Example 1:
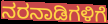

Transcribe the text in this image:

ನರನಾಡಿಗಳಿಗೆ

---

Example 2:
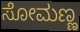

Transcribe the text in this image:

ಸೋಮಣ್ಣ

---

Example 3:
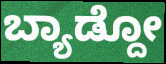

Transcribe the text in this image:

ಬ್ಯಾಡ್ದೋ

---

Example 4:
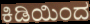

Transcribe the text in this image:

ಕಿಡಿಯಿಂದ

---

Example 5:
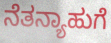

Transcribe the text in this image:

ನೆತನ್ಯಾಹುಗೆ